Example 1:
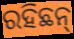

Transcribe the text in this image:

ରହିଛନ୍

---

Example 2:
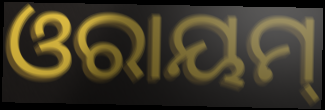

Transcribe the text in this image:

ଓରାୟମ୍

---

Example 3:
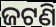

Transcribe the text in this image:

ଜଟଣି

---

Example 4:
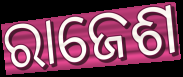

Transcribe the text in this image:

ରାଜେଶ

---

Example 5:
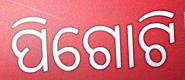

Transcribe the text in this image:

ପିଗୋଟି